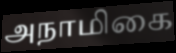
அநாமிகை